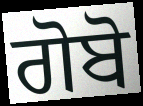
ਗੋਬੋ